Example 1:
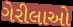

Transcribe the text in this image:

ગેરીલાઓ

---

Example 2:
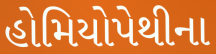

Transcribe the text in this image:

હોમિયોપેથીના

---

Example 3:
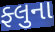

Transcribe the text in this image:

ફ્લુના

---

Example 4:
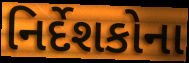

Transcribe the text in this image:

નિર્દેશકોના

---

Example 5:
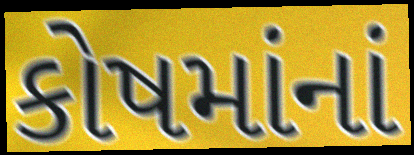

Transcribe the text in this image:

કોષમાંનાં